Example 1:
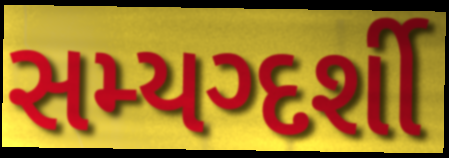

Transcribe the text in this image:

સમ્યગ્દર્શી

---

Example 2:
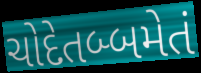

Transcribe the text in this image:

ચોદેતબ્બમેતં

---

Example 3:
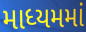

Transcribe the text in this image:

માધ્યમમાં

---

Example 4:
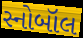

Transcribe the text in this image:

સ્નોબૉલ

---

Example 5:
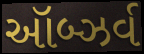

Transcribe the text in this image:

ઑબ્ઝર્વ